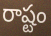
రాష్టం